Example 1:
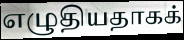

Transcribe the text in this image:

எழுதியதாகக்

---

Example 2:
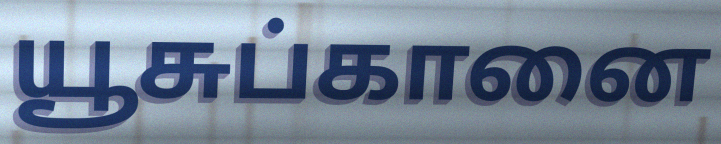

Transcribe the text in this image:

யூசுப்கானை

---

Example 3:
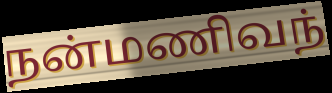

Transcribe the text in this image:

நன்மணிவந்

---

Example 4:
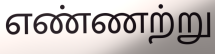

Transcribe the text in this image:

எண்ணற்று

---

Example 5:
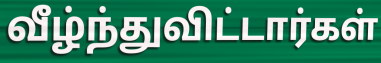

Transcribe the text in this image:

வீழ்ந்துவிட்டார்கள்